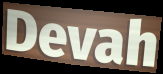
Devah